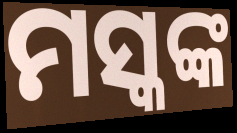
ମସ୍କଙ୍କ